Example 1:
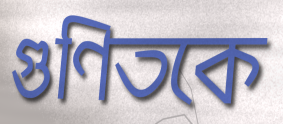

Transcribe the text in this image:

গুণিতকে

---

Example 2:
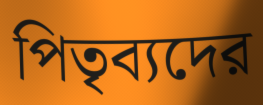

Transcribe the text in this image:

পিতৃব্যদের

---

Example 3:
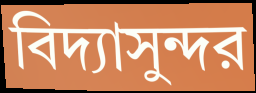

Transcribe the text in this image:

বিদ্যাসুন্দর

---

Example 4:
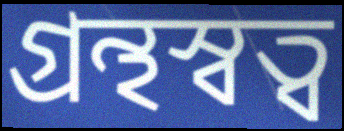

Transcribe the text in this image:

গ্রন্থস্বত্ব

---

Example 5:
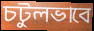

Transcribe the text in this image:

চটুলভাবে